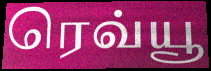
ரெவ்யூ